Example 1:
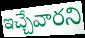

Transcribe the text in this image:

ఇచ్చేవారని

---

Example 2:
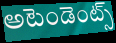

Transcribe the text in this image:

అటెండెంట్స్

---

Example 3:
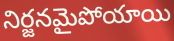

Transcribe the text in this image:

నిర్జనమైపోయాయి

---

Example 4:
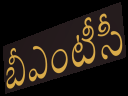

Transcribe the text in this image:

బీఎంటీసీ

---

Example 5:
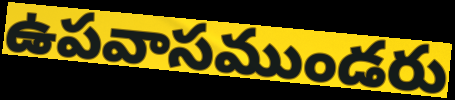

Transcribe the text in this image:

ఉపవాసముండరు